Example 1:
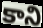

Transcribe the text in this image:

కాని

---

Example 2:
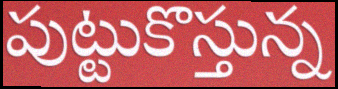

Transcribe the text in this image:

పుట్టుకొస్తున్న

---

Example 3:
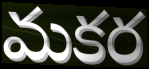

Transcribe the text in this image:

మకర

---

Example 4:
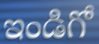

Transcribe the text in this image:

ఇండిగో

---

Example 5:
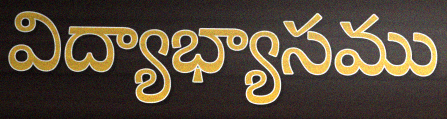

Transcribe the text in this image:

విద్యాభ్యాసము